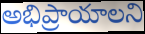
అభిప్రాయాలని